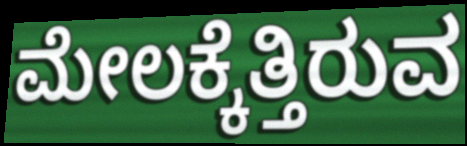
ಮೇಲಕ್ಕೆತ್ತಿರುವ